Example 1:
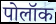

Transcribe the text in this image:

पोलॉक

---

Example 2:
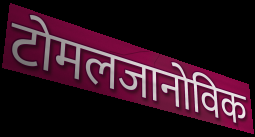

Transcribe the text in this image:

टोमलजानोविक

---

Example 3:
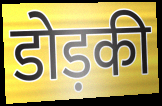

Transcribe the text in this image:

डोड़की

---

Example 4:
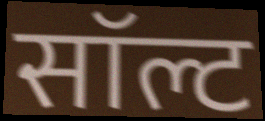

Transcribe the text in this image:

सॉल्‍ट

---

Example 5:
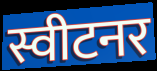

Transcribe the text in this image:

स्वीटनर